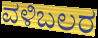
ವಳಿಬಲರ